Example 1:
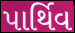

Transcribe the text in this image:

પાર્થિવ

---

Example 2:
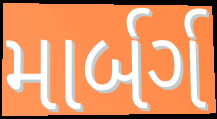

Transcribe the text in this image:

માર્બર્ગ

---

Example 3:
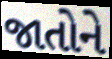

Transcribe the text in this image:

જાતોને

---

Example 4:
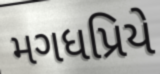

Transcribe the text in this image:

મગધપ્રિયે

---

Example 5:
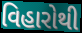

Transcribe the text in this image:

વિહારોથી